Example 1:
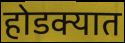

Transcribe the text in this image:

होडक्यात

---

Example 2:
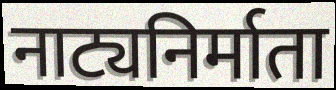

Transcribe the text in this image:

नाट्यनिर्माता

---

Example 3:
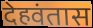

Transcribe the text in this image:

देहवंतास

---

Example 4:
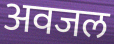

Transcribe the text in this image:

अवजल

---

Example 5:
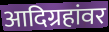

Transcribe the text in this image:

आदिग्रहांवर